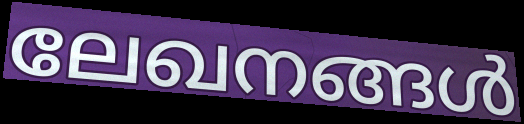
ലേഖനങ്ങൾ